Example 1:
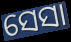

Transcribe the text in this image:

ସେସା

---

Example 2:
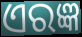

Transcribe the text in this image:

ଏରଜ୍ଞ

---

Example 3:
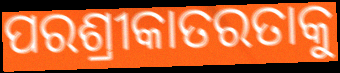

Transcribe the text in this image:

ପରଶ୍ରୀକାତରତାକୁ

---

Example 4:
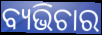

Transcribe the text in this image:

ବ୍ୟଭିଚାର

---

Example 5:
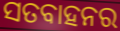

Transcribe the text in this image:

ସତବାହନର